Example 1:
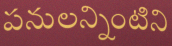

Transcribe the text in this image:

పనులన్నింటిని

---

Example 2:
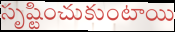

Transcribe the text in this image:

సృష్టించుకుంటాయి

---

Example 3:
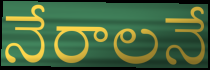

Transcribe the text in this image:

నేరాలనే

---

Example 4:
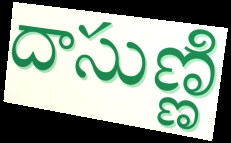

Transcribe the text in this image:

దాసుణ్ణి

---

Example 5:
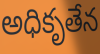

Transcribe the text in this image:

అధికృతేన